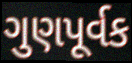
ગુણપૂર્વક